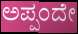
ಅಪ್ಪಂದೇ